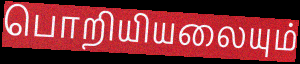
பொறியியலையும்